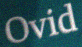
Ovid